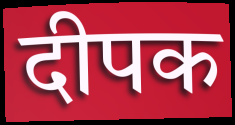
दीपक